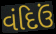
વંદિઉં